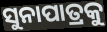
ସୁନାପାତ୍ରକୁ